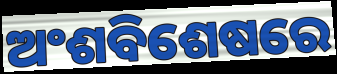
ଅଂଶବିଶେଷରେ